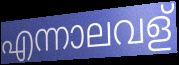
എന്നാലവള്